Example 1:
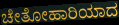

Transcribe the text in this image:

ಚೇತೋಹಾರಿಯಾದ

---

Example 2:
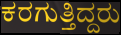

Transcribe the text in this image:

ಕರಗುತ್ತಿದ್ದರು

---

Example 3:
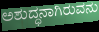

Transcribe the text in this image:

ಅಶುದ್ಧನಾಗಿರುವನು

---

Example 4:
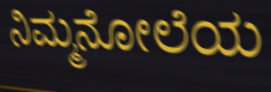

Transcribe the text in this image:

ನಿಮ್ಮನೋಲೆಯ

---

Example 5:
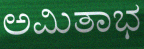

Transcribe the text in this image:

ಅಮಿತಾಭ